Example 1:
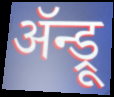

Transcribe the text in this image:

ॲन्ड्रू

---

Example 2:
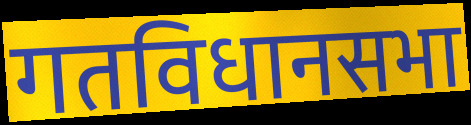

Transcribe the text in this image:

गतविधानसभा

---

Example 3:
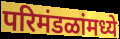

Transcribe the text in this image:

परिमंडळांमध्ये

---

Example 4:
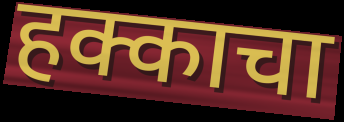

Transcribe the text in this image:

हक्काचा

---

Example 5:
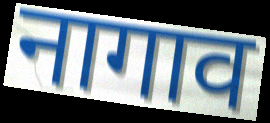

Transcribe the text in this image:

नागाव